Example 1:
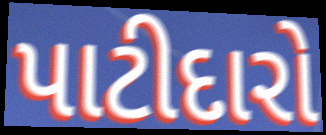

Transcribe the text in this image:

પાટીદારો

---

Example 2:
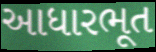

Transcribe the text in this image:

આધારભૂત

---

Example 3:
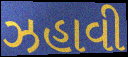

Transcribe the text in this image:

ઝહાવી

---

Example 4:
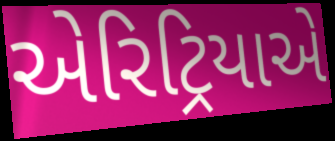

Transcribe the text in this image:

એરિટ્રિયાએ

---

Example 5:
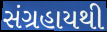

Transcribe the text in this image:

સંગ્રહાયથી